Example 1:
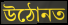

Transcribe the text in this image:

উঠোনত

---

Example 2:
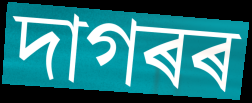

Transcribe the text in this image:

দাগৰৰ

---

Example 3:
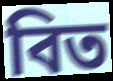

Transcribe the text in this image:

বিত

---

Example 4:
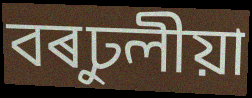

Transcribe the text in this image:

বৰঢুলীয়া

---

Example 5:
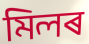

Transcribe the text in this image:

মিলৰ